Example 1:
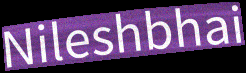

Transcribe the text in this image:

Nileshbhai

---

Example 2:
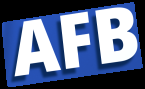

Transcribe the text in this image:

AFB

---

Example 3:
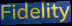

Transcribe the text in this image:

Fidelity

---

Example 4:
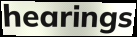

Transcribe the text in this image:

hearings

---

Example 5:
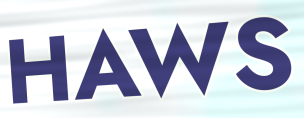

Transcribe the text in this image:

HAWS